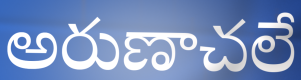
అరుణాచలే